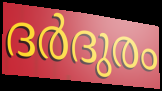
ദർദുരം